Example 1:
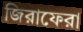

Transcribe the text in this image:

জিরাফেরা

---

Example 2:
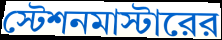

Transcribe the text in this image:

স্টেশনমাস্টারের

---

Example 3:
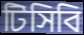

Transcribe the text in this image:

টিসিবি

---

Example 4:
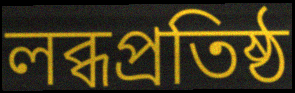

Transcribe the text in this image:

লব্ধপ্রতিষ্ঠ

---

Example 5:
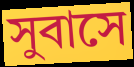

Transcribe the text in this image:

সুবাসে